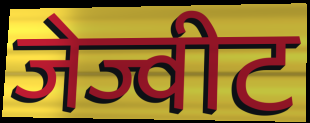
जेज्वीट